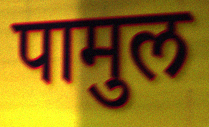
पामुल